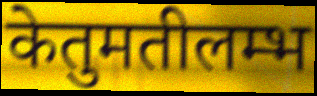
केतुमतीलम्भ